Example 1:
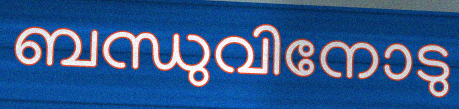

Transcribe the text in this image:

ബന്ധുവിനോടു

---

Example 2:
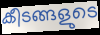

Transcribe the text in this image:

കീടങ്ങളുടെ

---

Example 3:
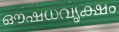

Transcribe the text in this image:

ഔഷധവൃക്ഷം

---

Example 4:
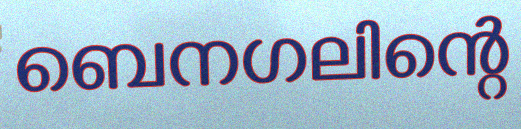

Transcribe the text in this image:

ബെനഗലിന്റെ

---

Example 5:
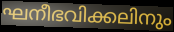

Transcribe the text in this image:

ഘനീഭവിക്കലിനും